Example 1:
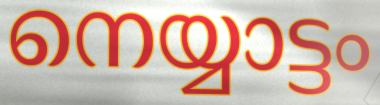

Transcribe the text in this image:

നെയ്യാട്ടം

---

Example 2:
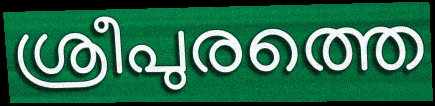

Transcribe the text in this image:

ശ്രീപുരത്തെ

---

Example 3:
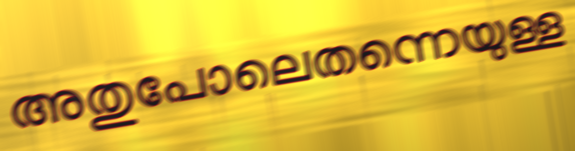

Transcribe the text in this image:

അതുപോലെതന്നെയുള്ള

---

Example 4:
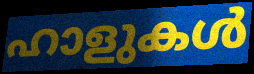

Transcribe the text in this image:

ഹാളുകൾ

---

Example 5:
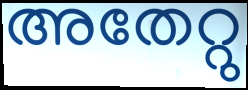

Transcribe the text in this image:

അതേറ്റു